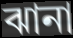
ঝানা